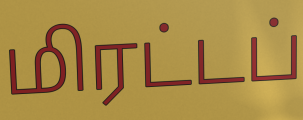
மிரட்டப்